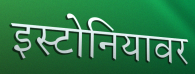
इस्टोनियावर